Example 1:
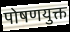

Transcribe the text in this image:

पोषणयुक्त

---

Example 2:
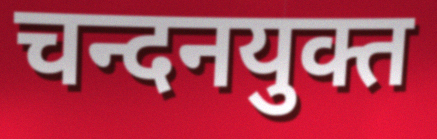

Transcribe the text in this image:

चन्दनयुक्त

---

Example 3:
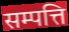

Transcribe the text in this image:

सम्पत्ति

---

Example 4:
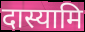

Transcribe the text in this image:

दास्यामि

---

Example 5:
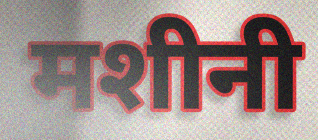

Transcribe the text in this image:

मशीनी